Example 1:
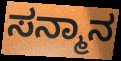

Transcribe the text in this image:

ಸನ್ಮಾನ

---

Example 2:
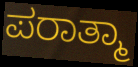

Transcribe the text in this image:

ಪರಾತ್ಮಾ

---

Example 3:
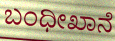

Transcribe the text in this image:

ಬಂಧೀಖಾನೆ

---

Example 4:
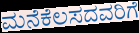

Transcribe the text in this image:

ಮನೆಕೆಲಸದವರಿಗೆ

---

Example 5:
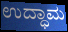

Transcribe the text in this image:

ಉದ್ಧಾಮ